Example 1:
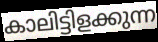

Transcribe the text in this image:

കാലിട്ടിളക്കുന്ന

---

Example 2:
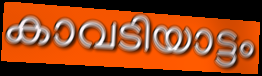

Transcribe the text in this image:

കാവടിയാട്ടം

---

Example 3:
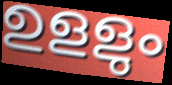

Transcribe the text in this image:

ഉളളും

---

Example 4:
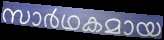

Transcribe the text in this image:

സാർഥകമായ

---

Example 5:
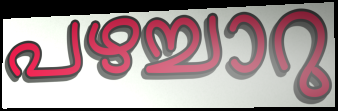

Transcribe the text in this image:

പഴച്ചാറു